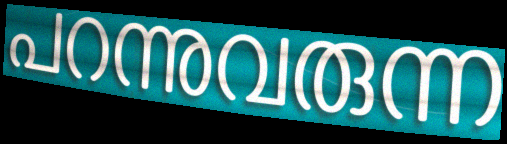
പറന്നുവരുന്ന